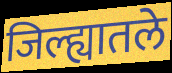
जिल्ह्यातले